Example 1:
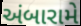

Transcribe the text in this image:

અંબારામે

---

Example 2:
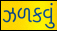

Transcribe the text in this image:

ઝળકવું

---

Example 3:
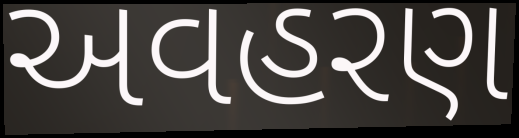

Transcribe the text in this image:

અવહરણ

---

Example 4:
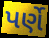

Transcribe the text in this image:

પર્ણે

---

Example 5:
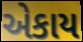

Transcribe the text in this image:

એકાય